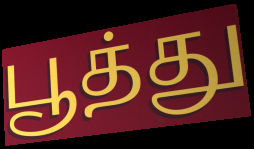
பூத்து